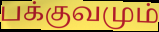
பக்குவமும்